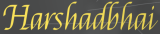
Harshadbhai